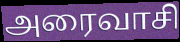
அரைவாசி